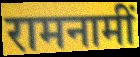
रामनामीं